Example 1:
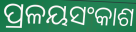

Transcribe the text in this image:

ପ୍ରଳୟସଂକାଶ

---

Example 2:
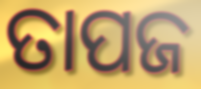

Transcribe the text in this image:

ତାପଜ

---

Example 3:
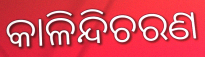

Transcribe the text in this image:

କାଳିନ୍ଦିଚରଣ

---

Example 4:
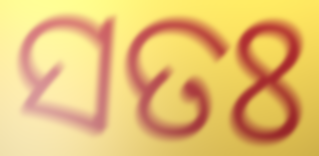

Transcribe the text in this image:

ସତଃ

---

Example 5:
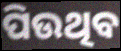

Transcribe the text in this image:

ପିଉଥିବ